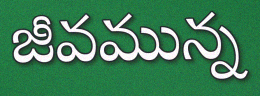
జీవమున్న